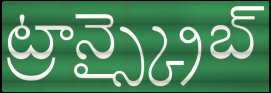
ట్రాన్స్క్రైబ్